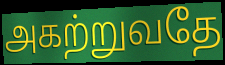
அகற்றுவதே